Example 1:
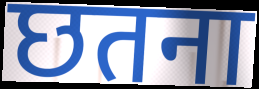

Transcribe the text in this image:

छतना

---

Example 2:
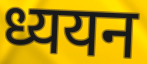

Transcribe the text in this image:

ध्ययन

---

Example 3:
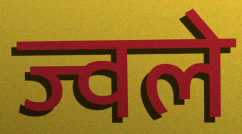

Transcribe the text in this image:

ज्वले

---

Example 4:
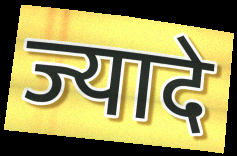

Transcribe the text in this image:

ज्यादे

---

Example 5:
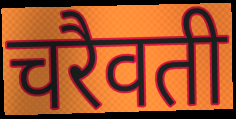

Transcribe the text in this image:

चरैवती